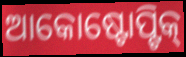
ଆକୋଷ୍ଟୋପ୍ଟିକ୍